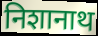
निशानाथ